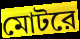
মোটরে